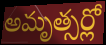
అమృత్సర్లో